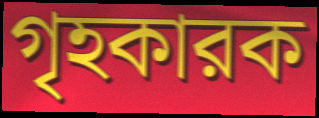
গৃহকারক